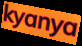
kyanya